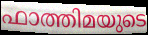
ഫാത്തിമയുടെ